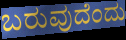
ಬರುವುದೆಂದು